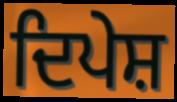
ਦਿਪੇਸ਼